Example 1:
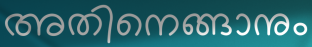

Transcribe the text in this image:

അതിനെങ്ങാനും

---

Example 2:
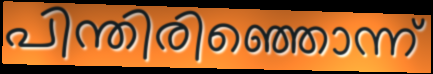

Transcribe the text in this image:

പിന്തിരിഞ്ഞൊന്ന്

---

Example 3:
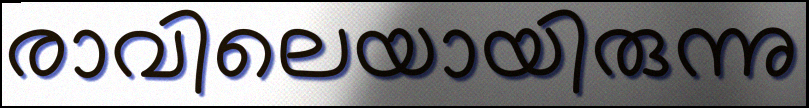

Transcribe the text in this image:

രാവിലെയായിരുന്നു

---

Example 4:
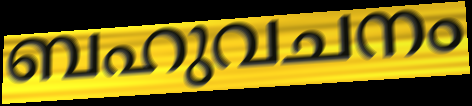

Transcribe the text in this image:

ബഹുവചനം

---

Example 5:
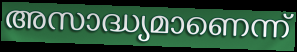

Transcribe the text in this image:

അസാദ്ധ്യമാണെന്ന്